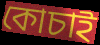
কোচাই